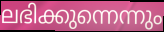
ലഭിക്കുന്നെന്നും